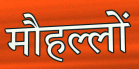
मौहल्लों